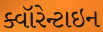
ક્વૉરેન્ટાઇન